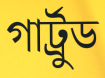
গার্ট্রুড